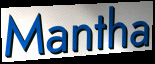
Mantha